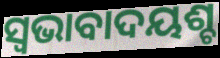
ସ୍ଵଭାବାଦୟଶ୍ଚ